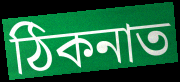
ঠিকনাত